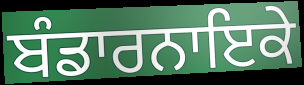
ਬੰਡਾਰਨਾਇਕੇ